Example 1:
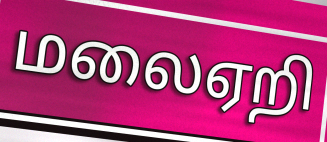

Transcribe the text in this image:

மலைஏறி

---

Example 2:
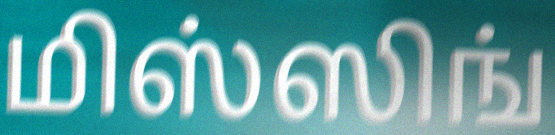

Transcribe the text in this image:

மிஸ்ஸிங்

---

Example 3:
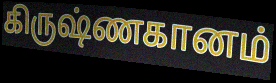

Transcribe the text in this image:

கிருஷ்ணகானம்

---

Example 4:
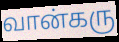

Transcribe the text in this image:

வான்கரு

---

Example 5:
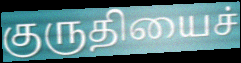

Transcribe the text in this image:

குருதியைச்